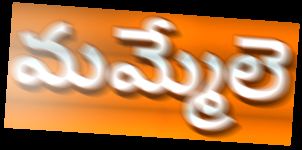
మమ్మేలె